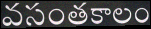
వసంతకాలం